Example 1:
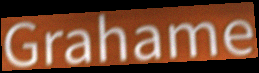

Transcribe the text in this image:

Grahame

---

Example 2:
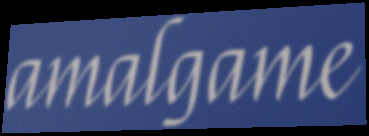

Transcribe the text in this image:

amalgame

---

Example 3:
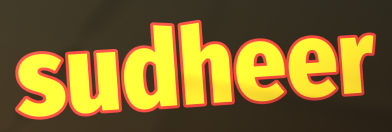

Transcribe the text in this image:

sudheer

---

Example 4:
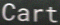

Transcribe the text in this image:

Cart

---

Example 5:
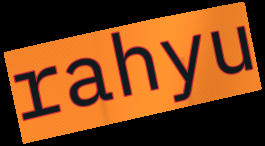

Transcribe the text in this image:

rahyu